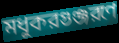
মধুকরগুঞ্জরণে